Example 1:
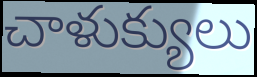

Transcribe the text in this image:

చాళుక్యులు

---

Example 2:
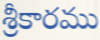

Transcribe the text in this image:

శ్రీకారము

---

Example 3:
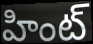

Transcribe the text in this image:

హింట్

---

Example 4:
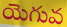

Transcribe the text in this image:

యెగువ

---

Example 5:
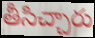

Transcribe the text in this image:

తీసిచ్చారు